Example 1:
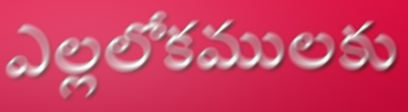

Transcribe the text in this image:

ఎల్లలోకములకు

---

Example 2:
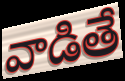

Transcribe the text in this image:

వాడితే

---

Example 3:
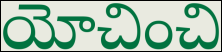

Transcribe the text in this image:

యోచించి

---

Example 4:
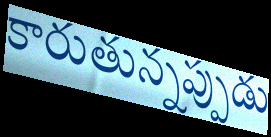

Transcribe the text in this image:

కారుతున్నప్పుడు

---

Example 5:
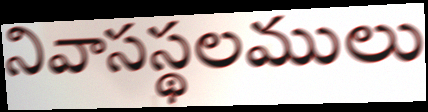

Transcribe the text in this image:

నివాసస్థలములు